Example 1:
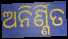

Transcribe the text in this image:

ଅନିର୍ଣ୍ଣିତ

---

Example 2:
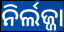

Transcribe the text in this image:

ନିର୍ଲଜ୍ଜା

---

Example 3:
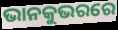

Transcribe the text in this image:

ଭାନକୁଭରରେ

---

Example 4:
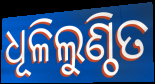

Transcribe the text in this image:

ଧୂଳିଲୁଣ୍ଠିତ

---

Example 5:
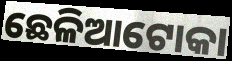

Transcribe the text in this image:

ଛେଳିଆଟୋକା